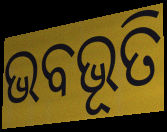
ଭବଭୂତି